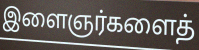
இளைஞர்களைத்